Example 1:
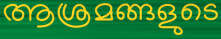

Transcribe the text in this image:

ആശ്രമങ്ങളുടെ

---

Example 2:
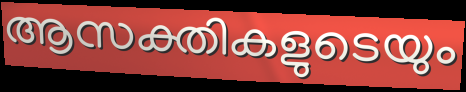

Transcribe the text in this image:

ആസക്തികളുടെയും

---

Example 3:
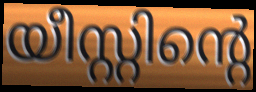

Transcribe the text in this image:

യീസ്റ്റിന്റെ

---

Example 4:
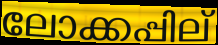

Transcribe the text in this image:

ലോക്കപ്പില്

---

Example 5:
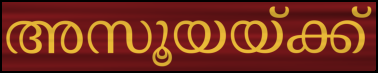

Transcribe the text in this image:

അസൂയയ്ക്ക്